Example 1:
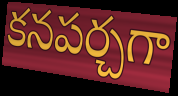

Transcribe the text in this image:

కనపర్చగా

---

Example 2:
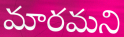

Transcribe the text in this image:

మారమని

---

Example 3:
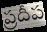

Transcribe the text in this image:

ప్రదీప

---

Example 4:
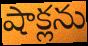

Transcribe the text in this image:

షాక్లను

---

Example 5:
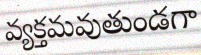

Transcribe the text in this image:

వ్యక్తమవుతుండగా